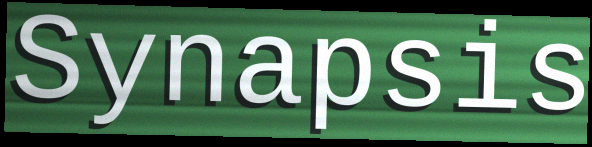
Synapsis